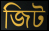
জিট